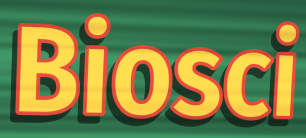
Biosci